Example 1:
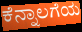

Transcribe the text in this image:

ಕೆನ್ನಾಲಗೆಯ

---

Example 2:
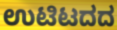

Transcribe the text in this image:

ಉಟಿಟದದ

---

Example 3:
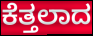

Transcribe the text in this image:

ಕೆತ್ತಲಾದ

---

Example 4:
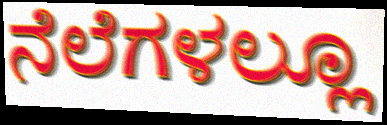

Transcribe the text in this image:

ನೆಲೆಗಳಲ್ಲೂ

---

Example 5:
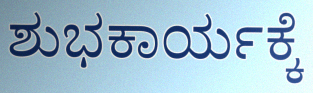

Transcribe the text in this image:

ಶುಭಕಾರ್ಯಕ್ಕೆ